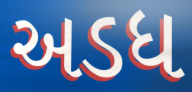
અડધ